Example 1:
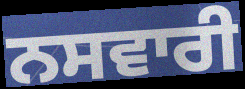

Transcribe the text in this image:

ਨਸਵਾਰੀ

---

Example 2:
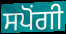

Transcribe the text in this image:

ਸਪੋਂਗੀ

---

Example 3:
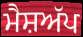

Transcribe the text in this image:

ਮੈਸ਼ਅੱਪ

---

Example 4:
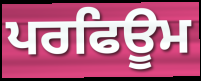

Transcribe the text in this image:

ਪਰਫਿਊਮ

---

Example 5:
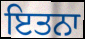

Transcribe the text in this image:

ਇਤਨਾ